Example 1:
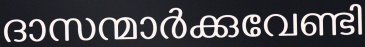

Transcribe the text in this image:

ദാസന്മാർക്കുവേണ്ടി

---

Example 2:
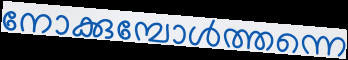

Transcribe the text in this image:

നോക്കുമ്പോൾത്തന്നെ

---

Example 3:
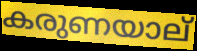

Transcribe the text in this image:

കരുണയാല്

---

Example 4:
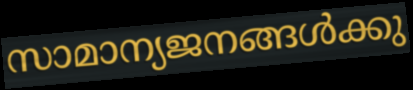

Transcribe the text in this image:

സാമാന്യജനങ്ങൾക്കു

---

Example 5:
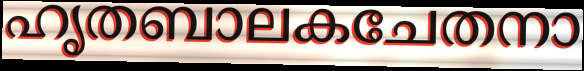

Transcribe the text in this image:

ഹൃതബാലകചേതനാ